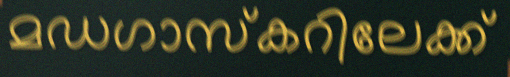
മഡഗാസ്കറിലേക്ക്